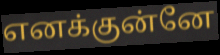
எனக்குன்னே